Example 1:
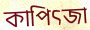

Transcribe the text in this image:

কাপিৎজা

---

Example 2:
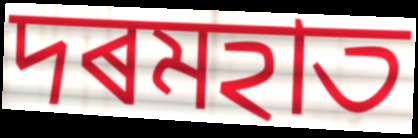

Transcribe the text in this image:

দৰমহাত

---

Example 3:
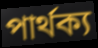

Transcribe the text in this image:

পাৰ্থক্য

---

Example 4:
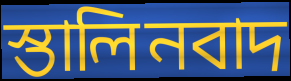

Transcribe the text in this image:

স্তালিনবাদ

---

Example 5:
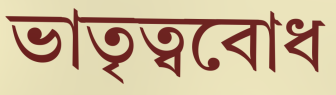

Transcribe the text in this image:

ভাতৃত্ববোধ